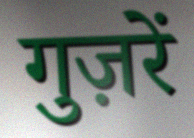
गुज़रें